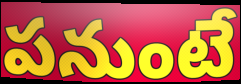
పనుంటే